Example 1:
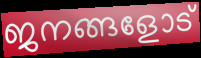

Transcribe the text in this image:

ജനങ്ങളോട്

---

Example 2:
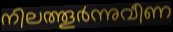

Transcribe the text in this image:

നിലത്തൂർന്നുവീണ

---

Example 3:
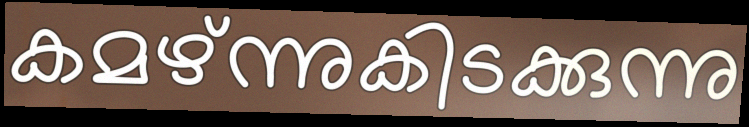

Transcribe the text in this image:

കമഴ്ന്നുകിടക്കുന്നു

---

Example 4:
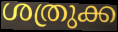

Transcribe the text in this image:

ശത്രുക്ക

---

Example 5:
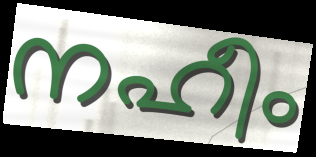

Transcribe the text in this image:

നഹീം